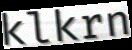
klkrn